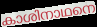
കാശിനാഥനെ